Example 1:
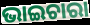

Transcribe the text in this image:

ଭାଇଚାରା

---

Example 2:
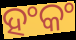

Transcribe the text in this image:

ହଂକଂ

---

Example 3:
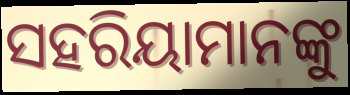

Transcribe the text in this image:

ସହରିୟାମାନଙ୍କୁ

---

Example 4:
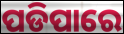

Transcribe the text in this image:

ପଡିପାରେ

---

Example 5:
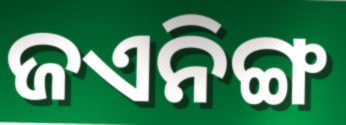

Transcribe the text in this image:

ଜଏନିଙ୍ଗ